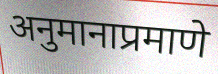
अनुमानाप्रमाणे